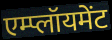
एम्प्लॉयमेंट